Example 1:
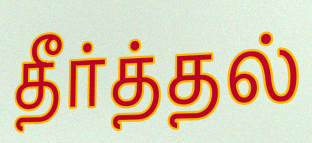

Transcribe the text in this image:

தீர்த்தல்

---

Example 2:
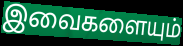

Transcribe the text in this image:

இவைகளையும்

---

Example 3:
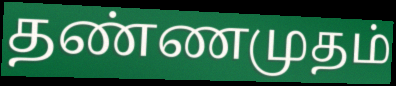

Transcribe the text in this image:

தண்ணமுதம்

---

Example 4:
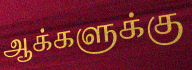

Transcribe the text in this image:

ஆக்களுக்கு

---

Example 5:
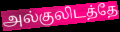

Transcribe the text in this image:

அல்குலிடத்தே